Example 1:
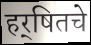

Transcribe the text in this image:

हर्षितचे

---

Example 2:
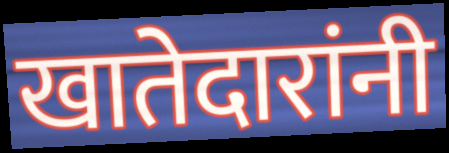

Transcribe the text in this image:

खातेदारांनी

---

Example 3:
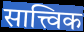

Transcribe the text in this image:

सात्त्विक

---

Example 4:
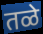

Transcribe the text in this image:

तळे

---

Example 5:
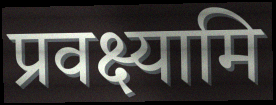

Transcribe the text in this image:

प्रवक्ष्यामि